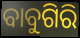
ବାବୁଗିରି